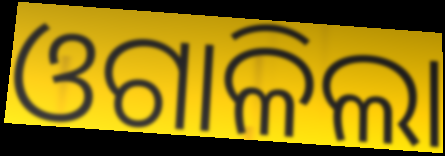
ଓଗାଳିଲା